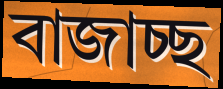
বাজাচ্ছ